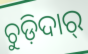
ଚୁଡ଼ିଦାର୍